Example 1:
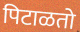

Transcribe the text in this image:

पिटाळतो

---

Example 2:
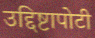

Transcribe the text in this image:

उद्दिष्टापोटी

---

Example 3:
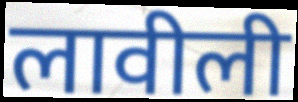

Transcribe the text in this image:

लावीली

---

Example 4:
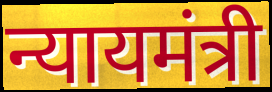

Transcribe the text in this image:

न्यायमंत्री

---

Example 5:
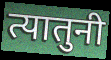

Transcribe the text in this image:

त्यातुनी